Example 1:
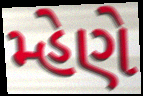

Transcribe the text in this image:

મ્હેણે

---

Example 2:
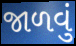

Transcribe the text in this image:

જાળવું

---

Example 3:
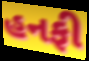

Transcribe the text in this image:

હનફી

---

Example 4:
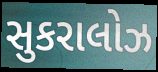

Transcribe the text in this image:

સુકરાલોઝ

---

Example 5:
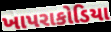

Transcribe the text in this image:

ખાપરાકોડિયા